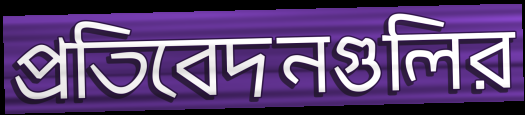
প্রতিবেদনগুলির